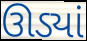
ઊડ્યાં